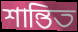
শান্তিত